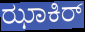
ಝಾಕಿರ್